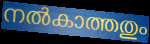
നൽകാത്തതും